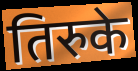
तिरुके